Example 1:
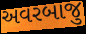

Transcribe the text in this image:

અવરબાજુ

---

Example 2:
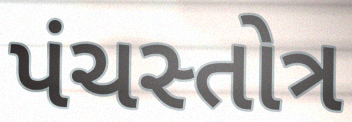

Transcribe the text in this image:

પંચસ્તોત્ર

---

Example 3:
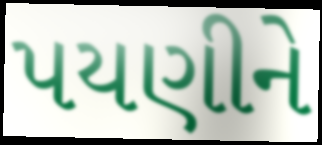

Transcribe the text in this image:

પયણીને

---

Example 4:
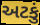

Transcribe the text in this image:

અટકું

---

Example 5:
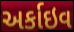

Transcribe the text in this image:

અર્કાઇવ